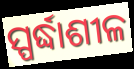
ସ୍ପର୍ଦ୍ଧାଶୀଳ